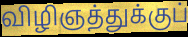
விழிஞத்துக்குப்